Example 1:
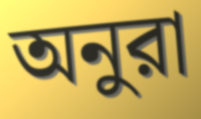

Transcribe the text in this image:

অনুরা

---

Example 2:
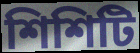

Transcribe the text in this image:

শিশিটি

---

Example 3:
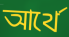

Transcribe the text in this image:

আর্থে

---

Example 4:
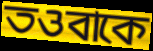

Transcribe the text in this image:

তওবাকে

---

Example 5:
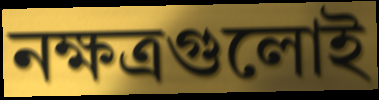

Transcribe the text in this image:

নক্ষত্রগুলোই